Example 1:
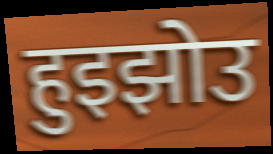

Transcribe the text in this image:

हुइझोउ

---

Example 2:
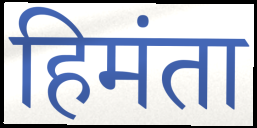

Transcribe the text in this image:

हिमंता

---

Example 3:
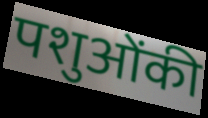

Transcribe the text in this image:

पशुओंकी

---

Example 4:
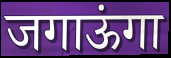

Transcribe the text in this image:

जगाऊंगा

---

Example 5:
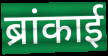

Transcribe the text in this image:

ब्रांकाई